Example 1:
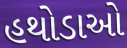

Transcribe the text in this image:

હથોડાઓ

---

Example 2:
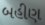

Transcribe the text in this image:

બહીણ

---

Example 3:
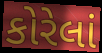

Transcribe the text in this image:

કોરેલાં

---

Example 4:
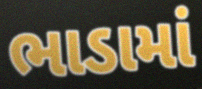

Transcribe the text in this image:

ભાડામાં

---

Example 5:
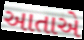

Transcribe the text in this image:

આતાએ